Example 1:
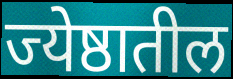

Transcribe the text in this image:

ज्येष्ठातील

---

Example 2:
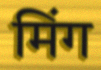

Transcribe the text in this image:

मिंग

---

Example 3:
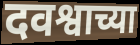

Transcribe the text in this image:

दवश्वाच्या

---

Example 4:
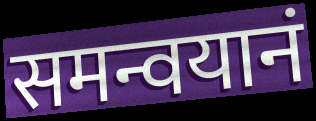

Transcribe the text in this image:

समन्वयानं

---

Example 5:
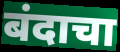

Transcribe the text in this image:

बंदाचा